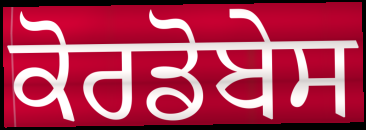
ਕੋਰਡੋਬੇਸ